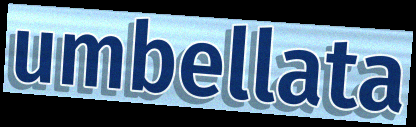
umbellata